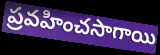
ప్రవహించసాగాయి